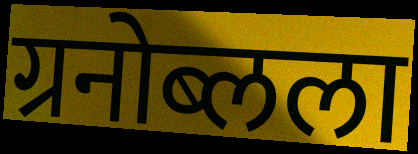
ग्रनोब्लला